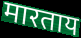
मारताय